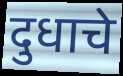
दुधाचे